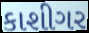
કાશીગર